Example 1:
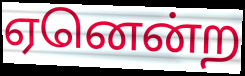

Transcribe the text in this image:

ஏனென்ற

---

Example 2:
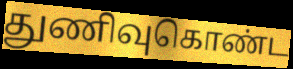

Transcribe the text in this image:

துணிவுகொண்ட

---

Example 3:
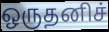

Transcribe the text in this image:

ஒருதனிச்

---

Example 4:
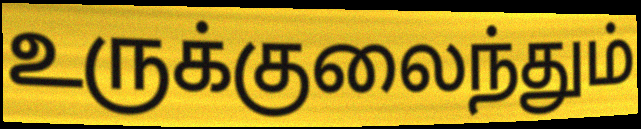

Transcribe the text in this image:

உருக்குலைந்தும்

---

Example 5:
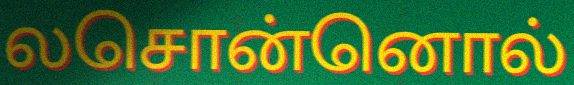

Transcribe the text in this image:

லசொன்னொல்